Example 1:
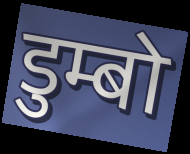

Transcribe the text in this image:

डुम्बो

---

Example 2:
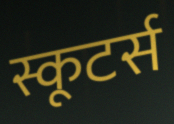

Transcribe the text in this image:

स्कूटर्स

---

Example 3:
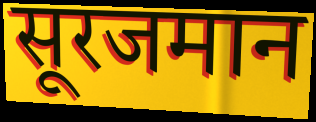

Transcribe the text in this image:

सूरजमान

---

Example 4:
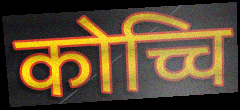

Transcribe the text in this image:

कोच्चि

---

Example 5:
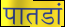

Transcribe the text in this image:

पातडां